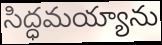
సిద్ధమయ్యాను